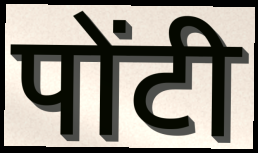
पोंटी